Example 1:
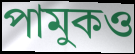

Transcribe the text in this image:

পামুকও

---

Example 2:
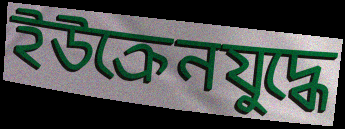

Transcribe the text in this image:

ইউক্রেনযুদ্ধে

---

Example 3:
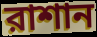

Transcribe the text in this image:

রাশান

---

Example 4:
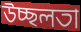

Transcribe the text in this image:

উচ্ছলতা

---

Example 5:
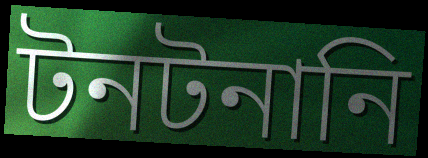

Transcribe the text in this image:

টনটনানি